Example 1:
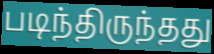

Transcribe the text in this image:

படிந்திருந்தது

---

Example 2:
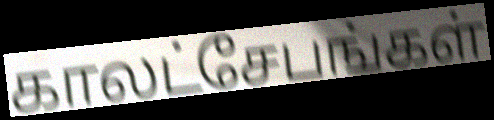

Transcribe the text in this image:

காலட்சேபங்கள்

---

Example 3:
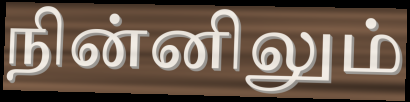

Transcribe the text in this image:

நின்னிலும்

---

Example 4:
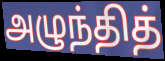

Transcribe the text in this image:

அழுந்தித்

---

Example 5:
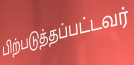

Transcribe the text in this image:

பிற்படுத்தப்பட்டவர்